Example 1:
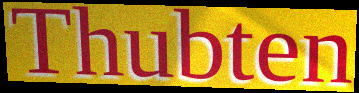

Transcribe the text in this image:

Thubten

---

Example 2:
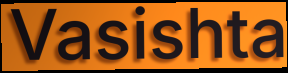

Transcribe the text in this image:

Vasishta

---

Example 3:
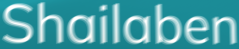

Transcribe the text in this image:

Shailaben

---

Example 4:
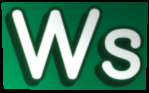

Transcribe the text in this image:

Ws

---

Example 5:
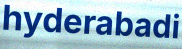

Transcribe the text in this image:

hyderabadi